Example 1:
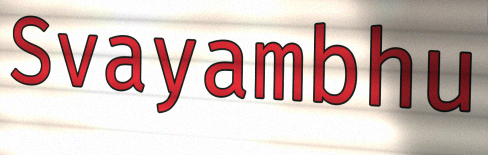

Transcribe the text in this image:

Svayambhu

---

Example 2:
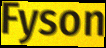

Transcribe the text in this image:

Fyson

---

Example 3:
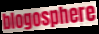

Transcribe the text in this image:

blogosphere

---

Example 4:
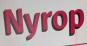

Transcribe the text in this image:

Nyrop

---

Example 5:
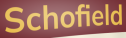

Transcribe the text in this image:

Schofield